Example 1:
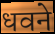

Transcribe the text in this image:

धवने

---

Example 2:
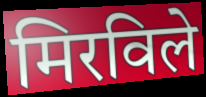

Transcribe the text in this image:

मिरविले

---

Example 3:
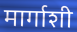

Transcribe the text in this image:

मार्गाशी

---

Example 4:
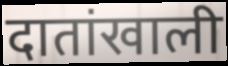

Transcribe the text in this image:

दातांखाली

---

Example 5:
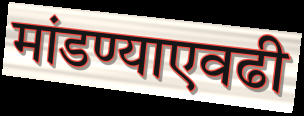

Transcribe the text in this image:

मांडण्याएवढी